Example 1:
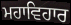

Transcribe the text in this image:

ਮਹਾਵਿਹਾਰ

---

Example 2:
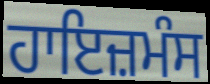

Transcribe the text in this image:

ਹਾਇਜ਼ਮੰਸ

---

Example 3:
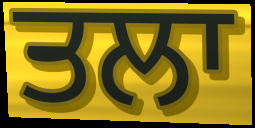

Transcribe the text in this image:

ਤਲਾ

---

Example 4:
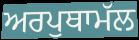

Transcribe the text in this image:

ਅਰਪੁਥਾਮੱਲ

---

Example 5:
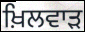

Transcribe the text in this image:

ਖ਼ਿਲਵਾੜ